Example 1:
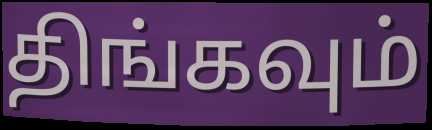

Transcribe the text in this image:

திங்கவும்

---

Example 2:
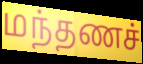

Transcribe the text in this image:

மந்தணச்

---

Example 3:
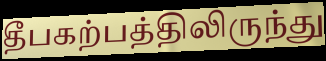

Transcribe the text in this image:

தீபகற்பத்திலிருந்து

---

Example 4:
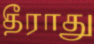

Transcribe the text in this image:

தீராது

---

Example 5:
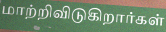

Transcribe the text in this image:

மாற்றிவிடுகிறார்கள்